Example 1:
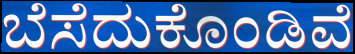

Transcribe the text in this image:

ಬೆಸೆದುಕೊಂಡಿವೆ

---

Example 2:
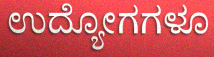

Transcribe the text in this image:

ಉದ್ಯೋಗಗಳೂ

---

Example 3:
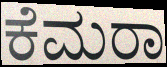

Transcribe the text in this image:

ಕೆಮರಾ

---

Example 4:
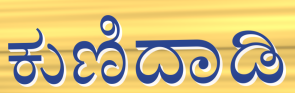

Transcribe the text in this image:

ಕುಣಿದಾಡಿ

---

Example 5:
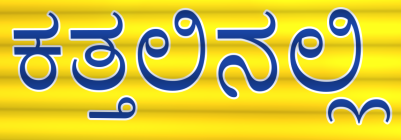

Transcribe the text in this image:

ಕತ್ತಲಿನಲ್ಲಿ